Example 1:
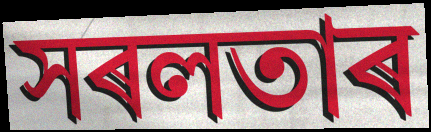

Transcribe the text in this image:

সৰলতাৰ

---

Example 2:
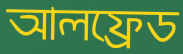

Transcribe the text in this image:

আলফ্ৰেড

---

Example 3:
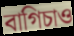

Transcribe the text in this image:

বাগিচাও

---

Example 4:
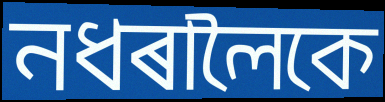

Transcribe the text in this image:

নধৰালৈকে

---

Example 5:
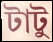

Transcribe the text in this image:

টাটু